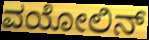
ವಯೋಲಿನ್